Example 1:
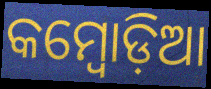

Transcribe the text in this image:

କମ୍ୱୋଡ଼ିଆ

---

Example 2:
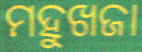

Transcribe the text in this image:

ମହୁଖଜା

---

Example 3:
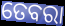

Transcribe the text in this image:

ତେବରା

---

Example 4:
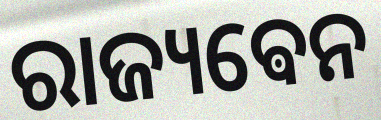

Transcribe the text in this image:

ରାଜ୍ୟଵେନ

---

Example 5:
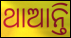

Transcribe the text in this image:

ଥାଆନ୍ତି